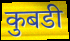
कुबडी